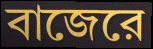
বাজেরে